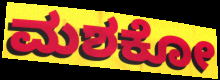
ಮಶಕೋ